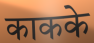
काकके